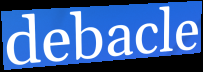
debacle